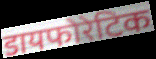
डायफोरेटिक